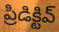
ప్రిడిక్టివ్